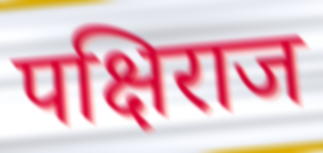
पक्षिराज